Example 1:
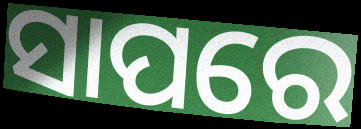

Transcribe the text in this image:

ସାପରେ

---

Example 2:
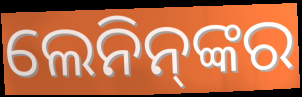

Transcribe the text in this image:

ଲେନିନ୍‌ଙ୍କର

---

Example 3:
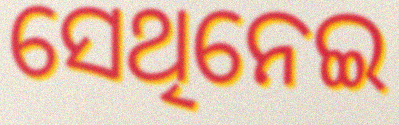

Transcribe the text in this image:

ସେଥିନେଇ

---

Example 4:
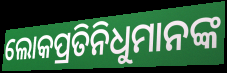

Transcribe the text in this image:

ଲୋକପ୍ରତିନିଧୁମାନଙ୍କ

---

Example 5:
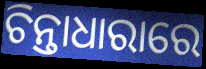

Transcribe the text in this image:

ଚିନ୍ତାଧାରାରେ